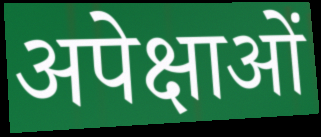
अपेक्षाओं